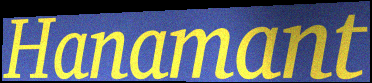
Hanamant